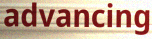
advancing